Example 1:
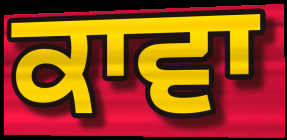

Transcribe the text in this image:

ਕਾਵਾ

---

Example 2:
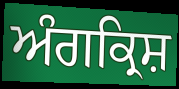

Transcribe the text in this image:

ਅੰਗਕ੍ਰਿਸ਼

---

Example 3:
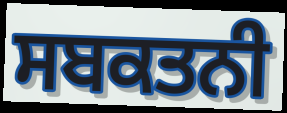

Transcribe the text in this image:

ਸਬਕਤਨੀ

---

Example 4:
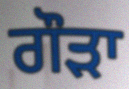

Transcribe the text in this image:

ਗੌੜਾ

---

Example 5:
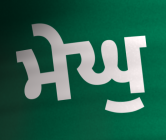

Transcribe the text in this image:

ਮੇਘੁ